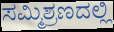
ಸಮ್ಮಿಶ್ರಣದಲ್ಲಿ